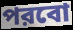
পরবো